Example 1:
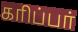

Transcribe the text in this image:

கரிப்பர்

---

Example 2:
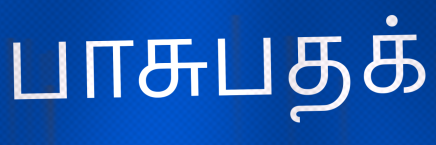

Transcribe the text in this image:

பாசுபதக்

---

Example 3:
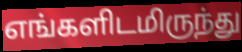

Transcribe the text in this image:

எங்களிடமிருந்து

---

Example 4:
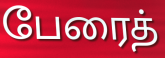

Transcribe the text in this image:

பேரைத்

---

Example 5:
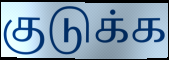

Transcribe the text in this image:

குடுக்க